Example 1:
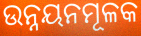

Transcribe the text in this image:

ଉନ୍ନୟନମୂଳକ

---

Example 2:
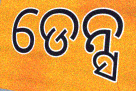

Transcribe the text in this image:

ଡେନ୍ସ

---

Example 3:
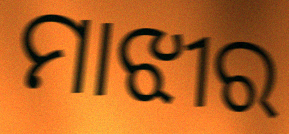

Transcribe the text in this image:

ମାଝୀର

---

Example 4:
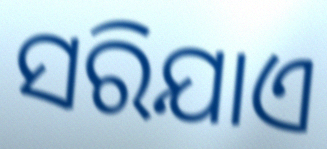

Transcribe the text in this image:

ସରିଯାଏ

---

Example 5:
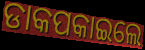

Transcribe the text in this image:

ଡାକପକାଇଲେ